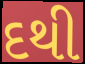
દથી